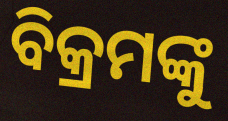
ବିକ୍ରମଙ୍କୁ